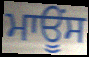
ਮਾਊਂਸ